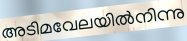
അടിമവേലയിൽനിന്നു